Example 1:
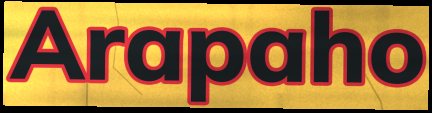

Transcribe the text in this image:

Arapaho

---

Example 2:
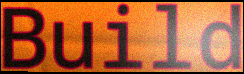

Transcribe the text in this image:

Build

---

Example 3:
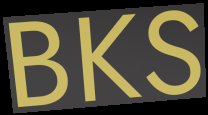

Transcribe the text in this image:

BKS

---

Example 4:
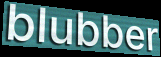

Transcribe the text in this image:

blubber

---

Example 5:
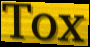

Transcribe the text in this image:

Tox